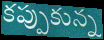
కప్పుకున్న